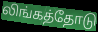
லிங்கத்தோடு